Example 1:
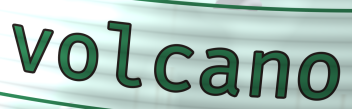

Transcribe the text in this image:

volcano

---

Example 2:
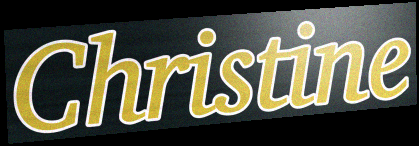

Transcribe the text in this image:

Christine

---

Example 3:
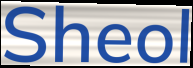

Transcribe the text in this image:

Sheol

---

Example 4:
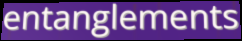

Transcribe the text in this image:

entanglements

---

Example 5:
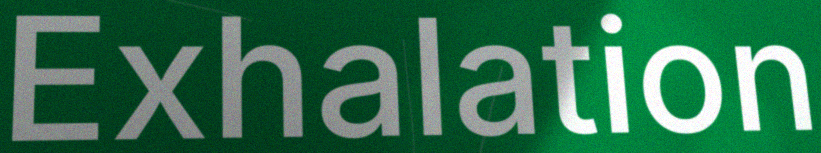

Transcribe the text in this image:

Exhalation